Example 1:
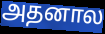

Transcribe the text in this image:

அதனால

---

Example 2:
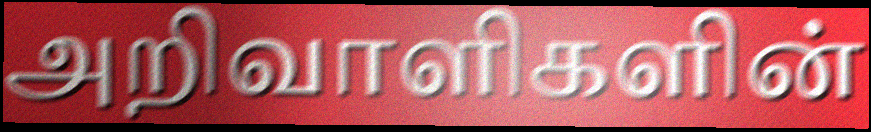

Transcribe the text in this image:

அறிவாளிகளின்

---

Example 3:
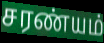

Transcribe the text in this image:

சரண்யம்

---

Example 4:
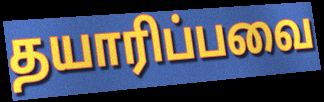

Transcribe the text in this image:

தயாரிப்பவை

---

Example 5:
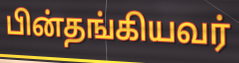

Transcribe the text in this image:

பின்தங்கியவர்